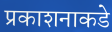
प्रकाशनाकडे